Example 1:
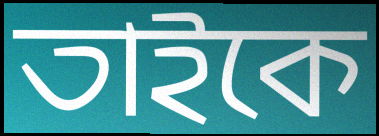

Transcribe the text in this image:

তাইকে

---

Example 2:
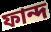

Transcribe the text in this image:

ফান্দ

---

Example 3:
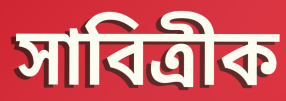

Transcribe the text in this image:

সাবিত্ৰীক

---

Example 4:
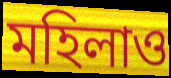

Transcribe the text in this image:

মহিলাও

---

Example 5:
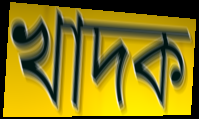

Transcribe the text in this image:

খাদক